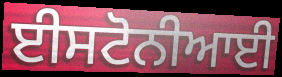
ਈਸਟੋਨੀਆਈ